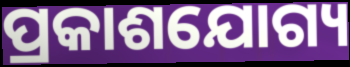
ପ୍ରକାଶଯୋଗ୍ୟ